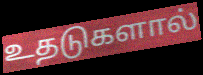
உதடுகளால்